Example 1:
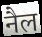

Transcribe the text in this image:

नैल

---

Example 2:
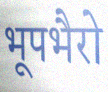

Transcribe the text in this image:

भूपभैरो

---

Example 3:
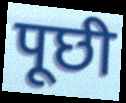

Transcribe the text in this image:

पूछी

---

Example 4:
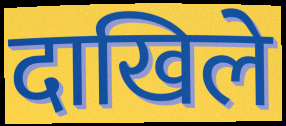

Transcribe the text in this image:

दाखिले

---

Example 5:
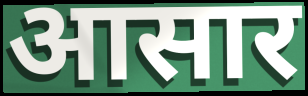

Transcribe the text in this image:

आसार